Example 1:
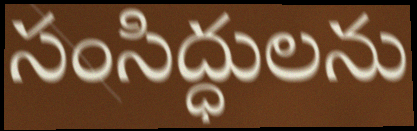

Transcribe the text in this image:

సంసిద్ధులను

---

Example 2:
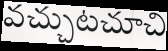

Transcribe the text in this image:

వచ్చుటచూచి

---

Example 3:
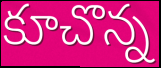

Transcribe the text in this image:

కూచొన్న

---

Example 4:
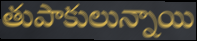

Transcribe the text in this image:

తుపాకులున్నాయి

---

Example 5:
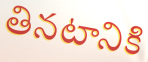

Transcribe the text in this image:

తినటానికి